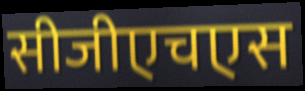
सीजीएचएस